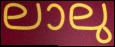
ലാലു